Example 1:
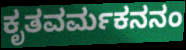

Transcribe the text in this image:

ಕೃತವರ್ಮಕನನಂ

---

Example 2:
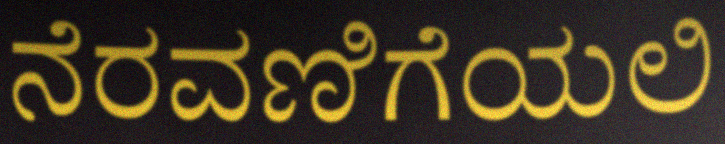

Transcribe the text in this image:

ನೆರವಣಿಗೆಯಲಿ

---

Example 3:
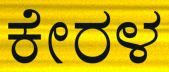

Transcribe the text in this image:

ಕೇರಳ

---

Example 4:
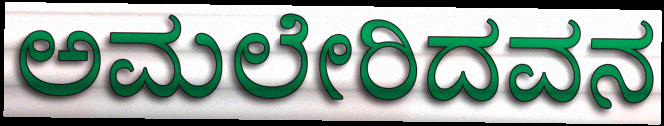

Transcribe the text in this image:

ಅಮಲೇರಿದವನ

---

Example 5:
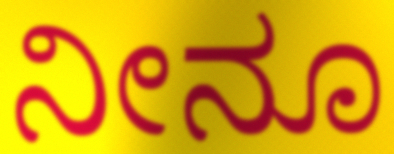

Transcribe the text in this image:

ನೀನೂ